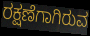
ರಕ್ಷಣೆಗಾಗಿರುವ